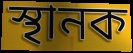
স্থানক